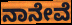
ನಾನೇವೆ